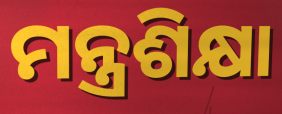
ମନ୍ତ୍ରଶିକ୍ଷା